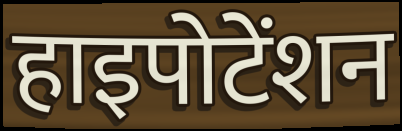
हाइपोटेंशन